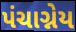
પંચાગ્નેય